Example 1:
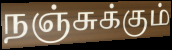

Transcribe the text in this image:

நஞ்சுக்கும்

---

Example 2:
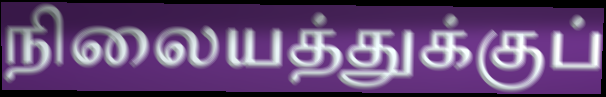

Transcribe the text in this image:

நிலையத்துக்குப்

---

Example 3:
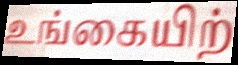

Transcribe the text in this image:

உங்கையிற்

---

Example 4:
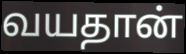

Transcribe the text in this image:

வயதான்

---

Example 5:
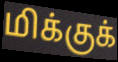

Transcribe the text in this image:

மிக்குக்